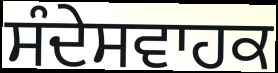
ਸੰਦੇਸਵਾਹਕ